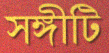
সঙ্গীটি